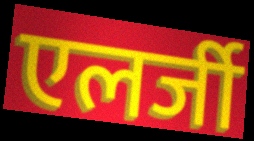
एलर्जी